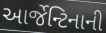
આર્જેન્ટિનાની